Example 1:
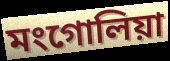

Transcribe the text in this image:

মংগোলিয়া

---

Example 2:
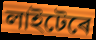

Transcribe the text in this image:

লাইটেৰে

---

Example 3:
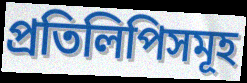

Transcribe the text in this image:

প্ৰতিলিপিসমূহ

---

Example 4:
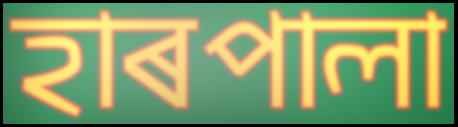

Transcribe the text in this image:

হাৰপালা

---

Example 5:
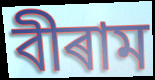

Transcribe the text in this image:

বীৰাম